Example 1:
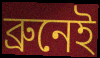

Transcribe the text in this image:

ব্ৰুনেই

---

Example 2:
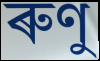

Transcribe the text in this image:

ৰুণু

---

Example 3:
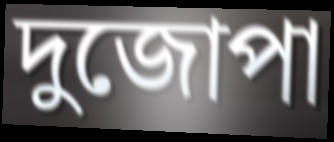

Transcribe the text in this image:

দুজোপা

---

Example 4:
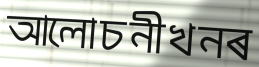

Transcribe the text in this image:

আলোচনীখনৰ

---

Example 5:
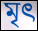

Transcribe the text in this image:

মৃৎ